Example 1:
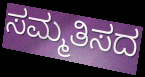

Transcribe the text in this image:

ಸಮ್ಮತಿಸದ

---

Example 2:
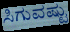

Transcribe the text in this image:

ಸಿಗುವಷ್ಟು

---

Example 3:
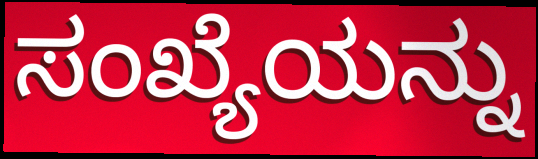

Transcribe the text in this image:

ಸಂಖ್ಯೆಯನ್ನು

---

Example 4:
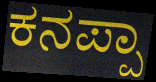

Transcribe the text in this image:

ಕನಪ್ಪಾ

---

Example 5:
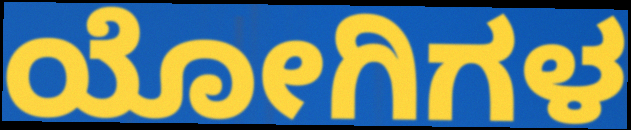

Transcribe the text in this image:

ಯೋಗಿಗಳ